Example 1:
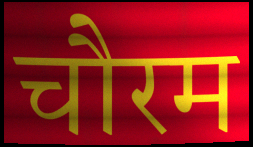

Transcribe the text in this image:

चौरम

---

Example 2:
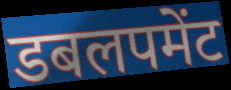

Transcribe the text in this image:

डबलपमेंट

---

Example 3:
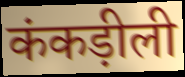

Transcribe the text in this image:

कंकड़ीली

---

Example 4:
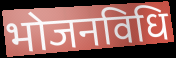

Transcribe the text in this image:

भोजनविधि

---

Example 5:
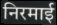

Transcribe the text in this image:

निरमाई